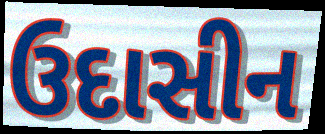
ઉદાસીન